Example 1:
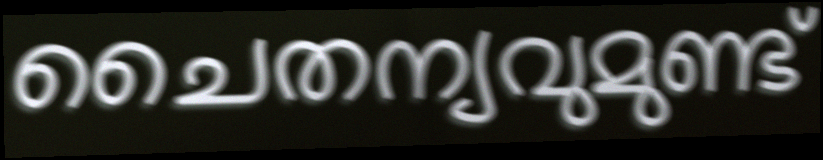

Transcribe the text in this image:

ചൈതന്യവുമുണ്ട്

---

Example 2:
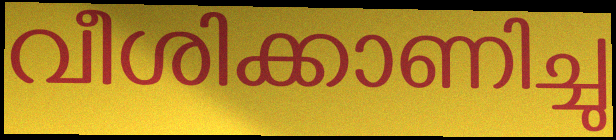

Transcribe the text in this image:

വീശിക്കാണിച്ചു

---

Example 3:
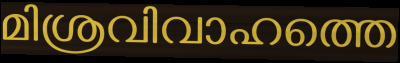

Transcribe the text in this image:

മിശ്രവിവാഹത്തെ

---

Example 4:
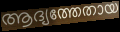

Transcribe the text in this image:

ആദ്യത്തേതായ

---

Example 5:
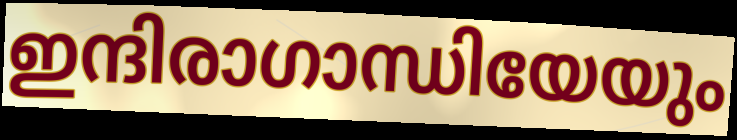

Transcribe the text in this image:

ഇന്ദിരാഗാന്ധിയേയും